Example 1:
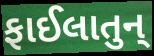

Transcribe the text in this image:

ફાઈલાતુન્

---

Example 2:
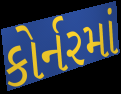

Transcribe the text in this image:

કોર્નરમાં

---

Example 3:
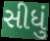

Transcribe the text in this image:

સીધું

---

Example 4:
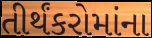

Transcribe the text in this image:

તીર્થંકરોમાંના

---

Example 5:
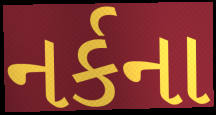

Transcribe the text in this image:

નર્કના